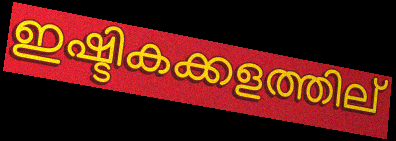
ഇഷ്ടികക്കളത്തില്